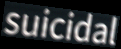
suicidal